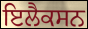
ਇਲੈਕਸਨ